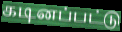
கடினப்பட்டு